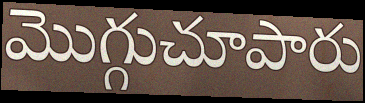
మొగ్గుచూపారు